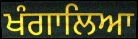
ਖੰਗਾਲਿਆ